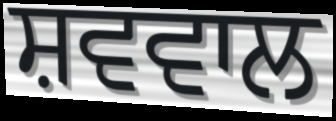
ਸ਼ਵਵਾਲ